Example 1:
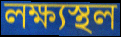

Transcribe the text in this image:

লক্ষ্যস্থল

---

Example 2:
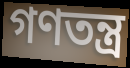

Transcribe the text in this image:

গণতন্ত্র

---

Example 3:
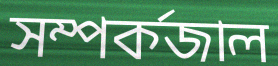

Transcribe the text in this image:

সম্পর্কজাল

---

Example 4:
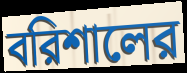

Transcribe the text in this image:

বরিশালের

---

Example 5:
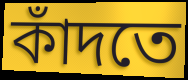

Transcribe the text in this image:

কাঁদতে